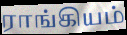
ராங்கியம்